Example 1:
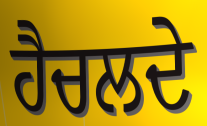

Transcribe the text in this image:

ਹੈਚਲਦੇ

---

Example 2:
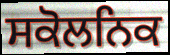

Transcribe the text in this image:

ਸਕੋਲਨਿਕ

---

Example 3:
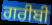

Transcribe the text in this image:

ਗਰੀਬੀ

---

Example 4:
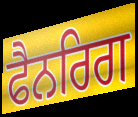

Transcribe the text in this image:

ਫੈਨਰਿਗ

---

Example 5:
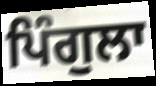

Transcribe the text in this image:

ਪਿੰਗੁਲਾ